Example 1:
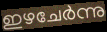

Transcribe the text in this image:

ഇഴചേർന്നു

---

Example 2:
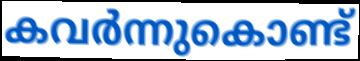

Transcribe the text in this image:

കവർന്നുകൊണ്ട്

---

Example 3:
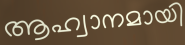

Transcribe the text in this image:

ആഹ്വാനമായി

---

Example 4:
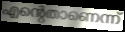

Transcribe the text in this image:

എന്റെതാണെന്ന്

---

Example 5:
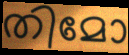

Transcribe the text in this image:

തിമോ